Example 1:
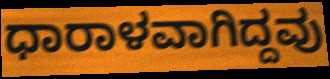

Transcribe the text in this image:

ಧಾರಾಳವಾಗಿದ್ದವು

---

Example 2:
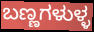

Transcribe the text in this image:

ಬಣ್ಣಗಳುಳ್ಳ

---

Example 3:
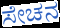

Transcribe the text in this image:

ಸೇಚನ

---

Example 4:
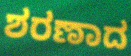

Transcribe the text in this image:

ಶರಣಾದ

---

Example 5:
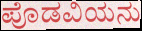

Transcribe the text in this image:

ಪೊಡವಿಯನು